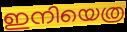
ഇനിയെത്ര